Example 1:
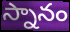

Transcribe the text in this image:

స్నానం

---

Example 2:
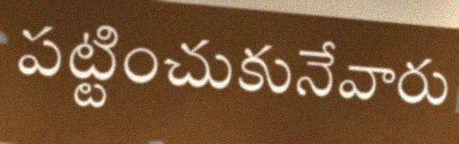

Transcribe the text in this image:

పట్టించుకునేవారు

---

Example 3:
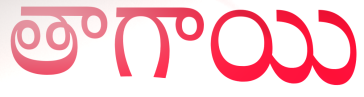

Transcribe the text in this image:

తాగాయి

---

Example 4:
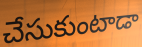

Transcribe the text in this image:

చేసుకుంటాడా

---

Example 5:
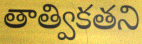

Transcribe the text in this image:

తాత్వికతని